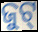
ଜୁଟ୍